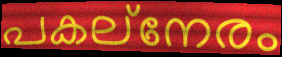
പകല്നേരം